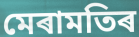
মেৰামতিৰ